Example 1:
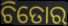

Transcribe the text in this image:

ଚିତୋର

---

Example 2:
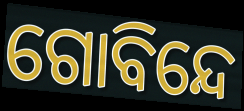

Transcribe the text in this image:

ଗୋବିନ୍ଦେ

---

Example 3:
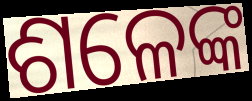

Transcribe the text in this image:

ଶଳେଙ୍କ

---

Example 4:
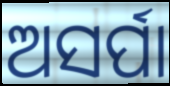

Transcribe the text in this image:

ଅସର୍ପା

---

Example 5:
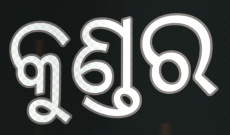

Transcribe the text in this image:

କୁଣ୍ଡର